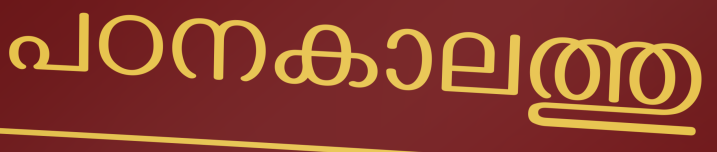
പഠനകാലത്തു